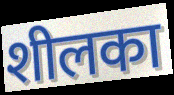
शीलका